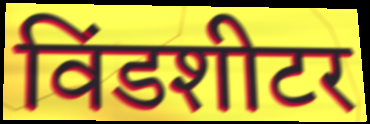
विंडशीटर